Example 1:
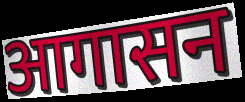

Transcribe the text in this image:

आगासन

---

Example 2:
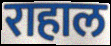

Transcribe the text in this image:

राहाल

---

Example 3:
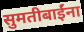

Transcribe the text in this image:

सुमतीबाईंना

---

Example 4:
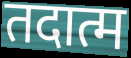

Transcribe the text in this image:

तदात्म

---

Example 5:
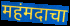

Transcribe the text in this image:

महंमदाचा